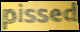
pissed